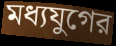
মধ্যযুগের